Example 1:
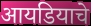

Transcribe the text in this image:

आयडियाचे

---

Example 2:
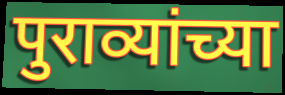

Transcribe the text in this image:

पुराव्यांच्या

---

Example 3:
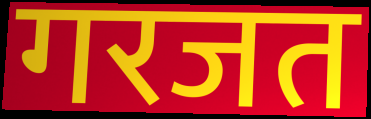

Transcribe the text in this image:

गरजत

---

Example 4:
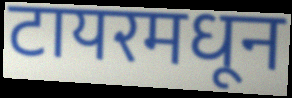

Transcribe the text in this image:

टायरमधून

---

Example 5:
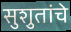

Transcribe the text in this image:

सुश्रुतांचे